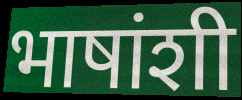
भाषांशी